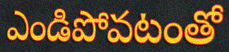
ఎండిపోవటంతో